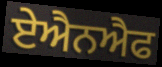
ਏਐਨਐਫ